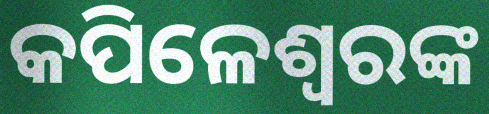
କପିଳେଶ୍ବରଙ୍କ